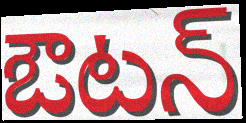
ఔటన్